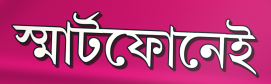
স্মার্টফোনেই